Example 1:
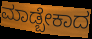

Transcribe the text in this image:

ಮಾಡ್ಬೇಕಾದ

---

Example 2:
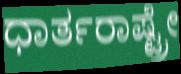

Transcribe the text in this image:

ಧಾರ್ತರಾಷ್ಟ್ರೇ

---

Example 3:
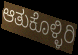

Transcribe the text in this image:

ಆತುಕೊಳ್ಳಿರಿ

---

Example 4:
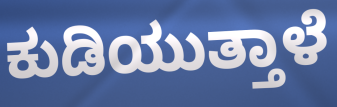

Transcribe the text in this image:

ಕುಡಿಯುತ್ತಾಳೆ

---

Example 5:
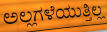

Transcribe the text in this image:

ಅಲ್ಲಗಳೆಯುತ್ತಿಲ್ಲ